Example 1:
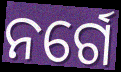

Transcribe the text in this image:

ନର୍ଗେ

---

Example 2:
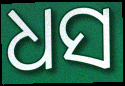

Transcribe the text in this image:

ଧସ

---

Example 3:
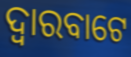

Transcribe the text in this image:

ଦ୍ୱାରବାଟେ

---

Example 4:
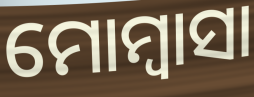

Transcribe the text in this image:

ମୋମ୍ବାସା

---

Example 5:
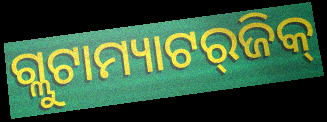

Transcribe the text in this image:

ଗ୍ଲୁଟାମ୍ୟାଟର୍‌ଜିକ୍